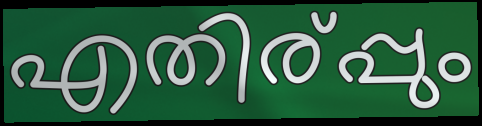
എതിര്പ്പും